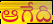
ఆగేది